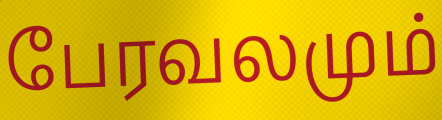
பேரவலமும்